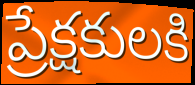
ప్రేక్షకులకి